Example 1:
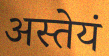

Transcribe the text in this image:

अस्तेयं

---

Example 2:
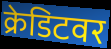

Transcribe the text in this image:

क्रेडिटवर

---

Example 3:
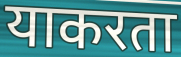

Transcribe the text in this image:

याकरता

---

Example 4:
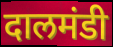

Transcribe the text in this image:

दालमंडी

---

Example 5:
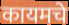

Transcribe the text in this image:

कायमचे